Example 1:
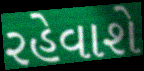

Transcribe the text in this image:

રહેવાશે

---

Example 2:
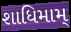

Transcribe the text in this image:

શાધિમામ્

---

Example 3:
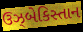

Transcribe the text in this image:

ઉઝ્બેકિસ્તાન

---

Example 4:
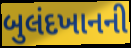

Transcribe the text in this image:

બુલંદખાનની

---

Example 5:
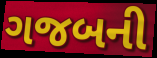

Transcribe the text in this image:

ગજબની